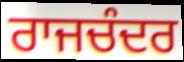
ਰਾਜਚੰਦਰ